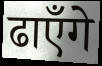
ढाएँगे